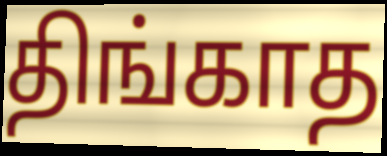
திங்காத